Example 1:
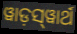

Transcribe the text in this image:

ୱାଡ଼ସ୍‌ୱାର୍ଥ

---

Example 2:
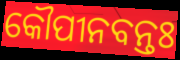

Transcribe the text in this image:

କୌପୀନବନ୍ତଃ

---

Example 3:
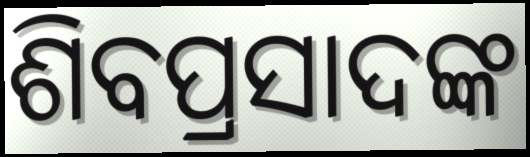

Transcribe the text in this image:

ଶିବପ୍ରସାଦଙ୍କ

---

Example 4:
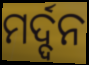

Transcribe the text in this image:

ମର୍ଦ୍ଦନ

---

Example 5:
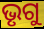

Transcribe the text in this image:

ଭୃଗୁ